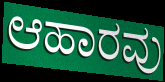
ಆಹಾರವು